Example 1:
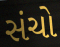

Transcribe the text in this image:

સંચો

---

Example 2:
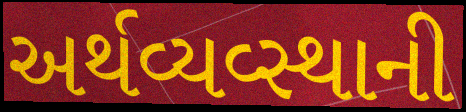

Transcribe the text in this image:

અર્થવ્યવ્સ્થાની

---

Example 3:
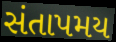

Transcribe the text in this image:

સંતાપમય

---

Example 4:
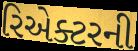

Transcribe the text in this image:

રિએક્ટરની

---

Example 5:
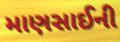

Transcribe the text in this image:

માણસાઈની